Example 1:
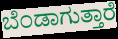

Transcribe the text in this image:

ಬೆಂಡಾಗುತ್ತಾರೆ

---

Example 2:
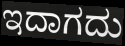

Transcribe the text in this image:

ಇದಾಗದು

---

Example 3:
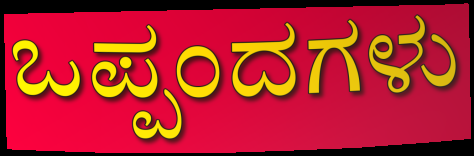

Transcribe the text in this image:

ಒಪ್ಪಂದಗಳು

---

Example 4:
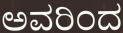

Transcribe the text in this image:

ಅವರಿಂದ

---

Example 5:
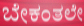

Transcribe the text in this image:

ಬೇಕಂತಲೇ